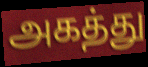
அகத்து